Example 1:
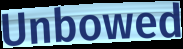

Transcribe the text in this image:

Unbowed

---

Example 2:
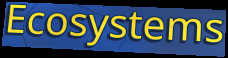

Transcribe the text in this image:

Ecosystems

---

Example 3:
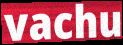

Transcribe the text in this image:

vachu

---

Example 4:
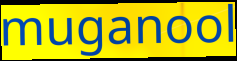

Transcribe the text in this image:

muganool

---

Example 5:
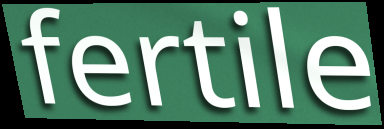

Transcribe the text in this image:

fertile